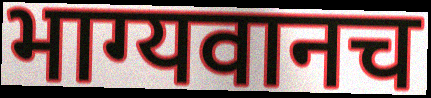
भाग्यवानच